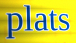
plats